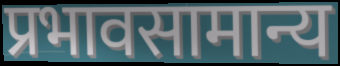
प्रभावसामान्य